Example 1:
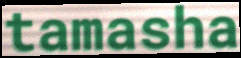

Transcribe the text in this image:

tamasha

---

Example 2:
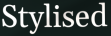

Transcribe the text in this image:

Stylised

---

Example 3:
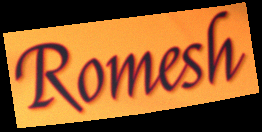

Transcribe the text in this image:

Romesh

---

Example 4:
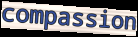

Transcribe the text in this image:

compassion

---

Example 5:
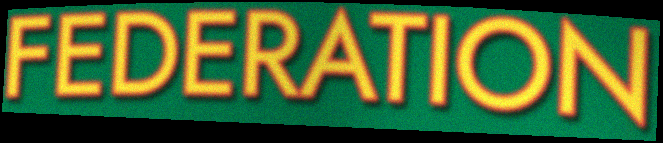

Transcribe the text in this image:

FEDERATION